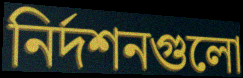
নির্দশনগুলো